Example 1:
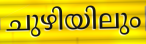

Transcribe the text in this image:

ചുഴിയിലും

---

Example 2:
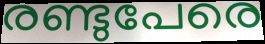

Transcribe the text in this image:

രണ്ടുപേരെ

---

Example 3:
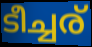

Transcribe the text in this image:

ടീച്ചര്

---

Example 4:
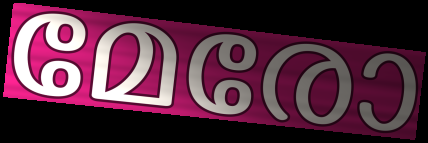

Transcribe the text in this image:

മേരോ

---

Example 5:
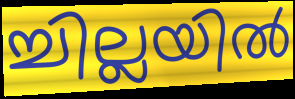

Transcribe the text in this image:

ച്ചില്ലയിൽ